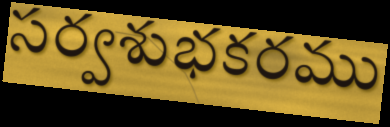
సర్వశుభకరము